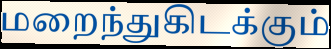
மறைந்துகிடக்கும்